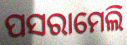
ପସରାମେଲି